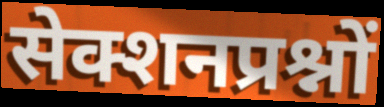
सेक्शनप्रश्नों